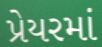
પ્રેયરમાં